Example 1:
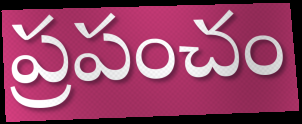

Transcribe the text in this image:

ప్రపంచం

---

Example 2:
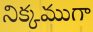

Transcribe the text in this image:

నిక్కముగా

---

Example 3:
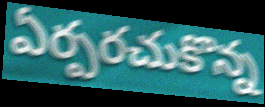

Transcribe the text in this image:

ఏర్పరచుకొన్న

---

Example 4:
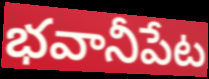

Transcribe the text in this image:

భవానీపేట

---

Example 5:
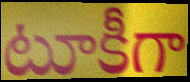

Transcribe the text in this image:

టూకీగా